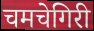
चमचेगिरी